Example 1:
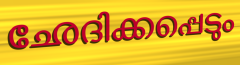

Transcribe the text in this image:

ഛേദിക്കപ്പെടും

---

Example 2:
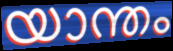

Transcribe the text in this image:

യാന്തം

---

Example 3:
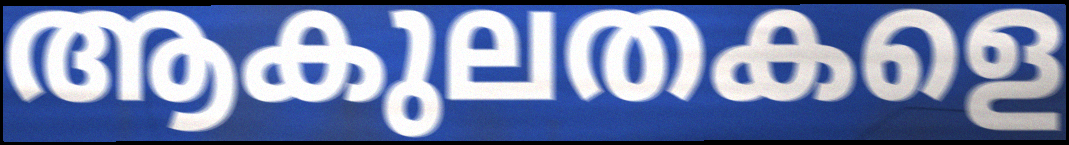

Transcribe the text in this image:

ആകുലതകളെ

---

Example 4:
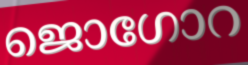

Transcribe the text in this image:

ജൊഗോറ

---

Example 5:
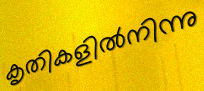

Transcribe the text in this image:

കൃതികളിൽനിന്നു